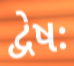
દ્વેષઃ